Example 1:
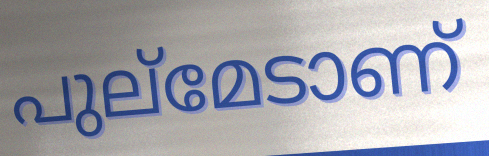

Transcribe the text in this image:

പുല്മേടാണ്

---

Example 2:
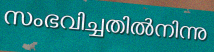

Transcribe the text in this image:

സംഭവിച്ചതിൽനിന്നു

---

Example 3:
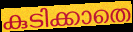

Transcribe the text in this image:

കുടിക്കാതെ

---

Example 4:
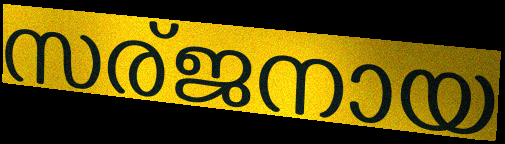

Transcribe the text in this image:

സര്ജനായ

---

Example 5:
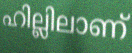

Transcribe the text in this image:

ഹില്ലിലാണ്